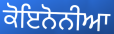
ਕੋਇਨੋਨੀਆ